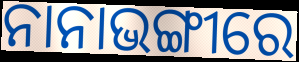
ନାନାଭଙ୍ଗୀରେ